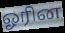
ஓரின